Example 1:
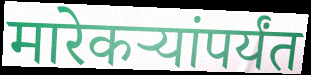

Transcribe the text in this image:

मारेकऱ्यांपर्यंत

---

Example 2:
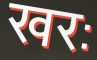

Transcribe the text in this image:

खरः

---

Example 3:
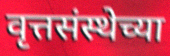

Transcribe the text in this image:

वृत्तसंस्थेच्या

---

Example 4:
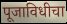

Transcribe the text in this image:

पूजाविधीचा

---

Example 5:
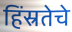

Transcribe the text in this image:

हिंस्रतेचे